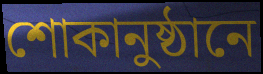
শোকানুষ্ঠানে